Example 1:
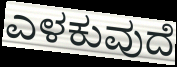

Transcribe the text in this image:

ಎಳಕುವುದೆ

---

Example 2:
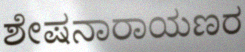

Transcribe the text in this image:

ಶೇಷನಾರಾಯಣರ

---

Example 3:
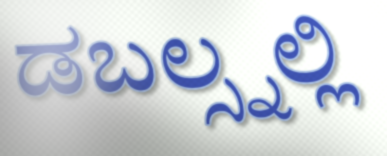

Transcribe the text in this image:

ಡಬಲ್ಸ್ನಲ್ಲಿ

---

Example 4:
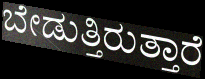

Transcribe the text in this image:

ಬೇಡುತ್ತಿರುತ್ತಾರೆ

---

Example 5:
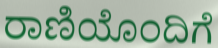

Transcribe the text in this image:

ರಾಣಿಯೊಂದಿಗೆ